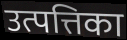
उत्पत्तिका